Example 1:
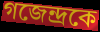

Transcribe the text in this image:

গজেন্দ্রকে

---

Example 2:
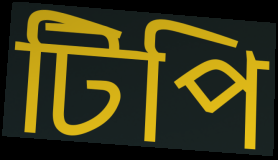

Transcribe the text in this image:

টিপি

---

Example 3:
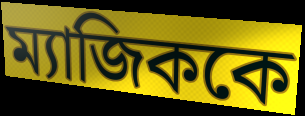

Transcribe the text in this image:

ম্যাজিককে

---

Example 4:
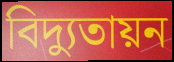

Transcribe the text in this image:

বিদ্যুতায়ন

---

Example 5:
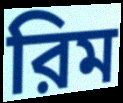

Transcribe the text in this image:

রিম